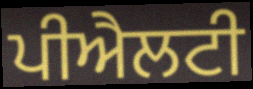
ਪੀਐਲਟੀ